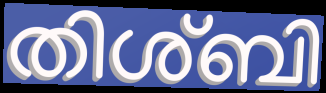
തിശ്ബി